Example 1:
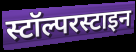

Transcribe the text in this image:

स्टॉल्परस्टाइन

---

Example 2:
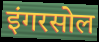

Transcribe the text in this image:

इंगरसोल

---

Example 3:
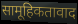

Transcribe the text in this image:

सामूहिकतावाद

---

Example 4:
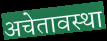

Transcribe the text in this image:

अचेतावस्था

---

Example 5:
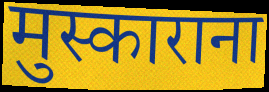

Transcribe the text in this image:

मुस्काराना